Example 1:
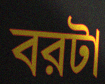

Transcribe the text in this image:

বরটা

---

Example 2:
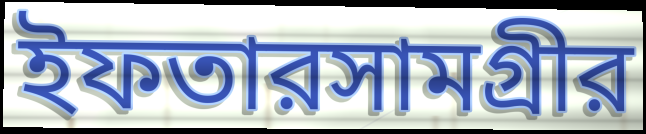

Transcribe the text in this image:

ইফতারসামগ্রীর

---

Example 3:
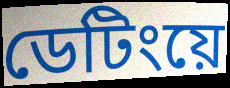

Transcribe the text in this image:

ডেটিংয়ে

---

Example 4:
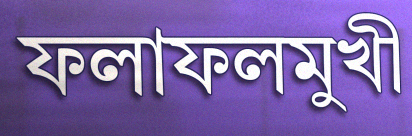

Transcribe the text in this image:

ফলাফলমুখী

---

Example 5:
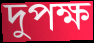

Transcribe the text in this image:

দুপক্ষ